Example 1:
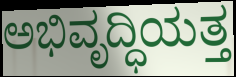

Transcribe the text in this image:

ಅಭಿವೃದ್ಧಿಯತ್ತ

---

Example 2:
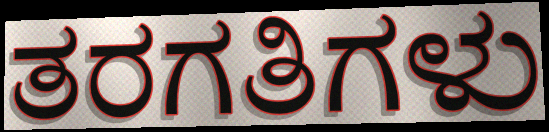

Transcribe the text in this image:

ತರಗತಿಗಳು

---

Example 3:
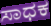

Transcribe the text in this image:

ಸಾಧಕ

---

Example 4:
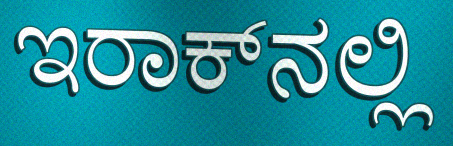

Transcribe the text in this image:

ಇರಾಕ್‌ನಲ್ಲಿ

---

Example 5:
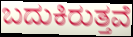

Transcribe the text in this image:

ಬದುಕಿರುತ್ತವೆ